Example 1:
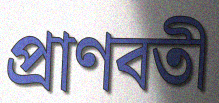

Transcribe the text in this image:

প্রাণবতী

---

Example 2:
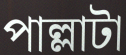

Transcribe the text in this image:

পাল্লাটা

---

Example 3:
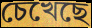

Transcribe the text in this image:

চেখেছে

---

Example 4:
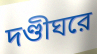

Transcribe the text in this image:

দণ্ডীঘরে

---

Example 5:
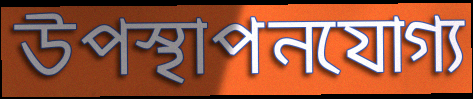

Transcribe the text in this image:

উপস্থাপনযোগ্য